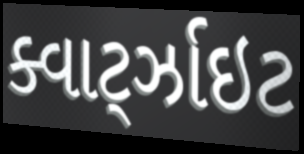
ક્વાર્ટ્ઝાઇટ